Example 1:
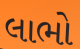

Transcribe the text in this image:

લાભો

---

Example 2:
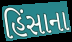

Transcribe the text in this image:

હિંસાના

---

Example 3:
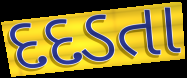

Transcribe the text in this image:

દદડતા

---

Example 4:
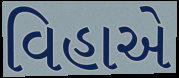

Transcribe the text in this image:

વિહાએ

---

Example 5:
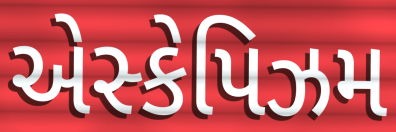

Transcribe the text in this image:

એસ્કેપિઝમ